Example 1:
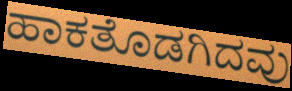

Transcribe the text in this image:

ಹಾಕತೊಡಗಿದವು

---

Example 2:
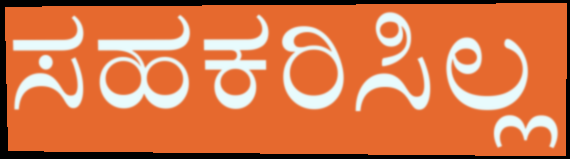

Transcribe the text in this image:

ಸಹಕರಿಸಿಲ್ಲ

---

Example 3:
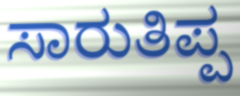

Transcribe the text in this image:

ಸಾರುತಿಪ್ಪ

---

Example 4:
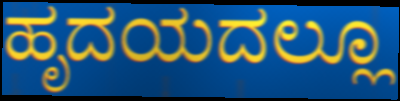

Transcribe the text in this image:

ಹೃದಯದಲ್ಲೂ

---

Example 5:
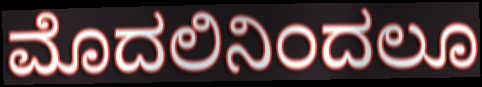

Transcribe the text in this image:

ಮೊದಲಿನಿಂದಲೂ